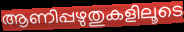
ആണിപ്പഴുതുകളിലൂടെ